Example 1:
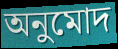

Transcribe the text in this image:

অনুমোদ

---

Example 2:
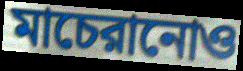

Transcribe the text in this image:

মাচেরানোও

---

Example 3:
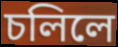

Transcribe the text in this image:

চলিলে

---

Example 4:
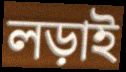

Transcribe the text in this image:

লড়াই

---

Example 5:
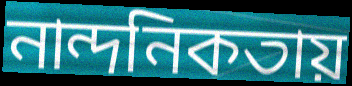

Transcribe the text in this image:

নান্দনিকতায়